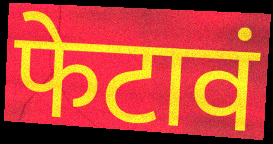
फेटावं